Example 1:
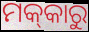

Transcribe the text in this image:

ମକ୍‌କାରୁ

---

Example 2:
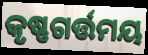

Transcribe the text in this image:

କୃଷ୍ଣଗର୍ତ୍ତମୟ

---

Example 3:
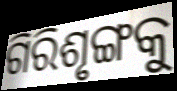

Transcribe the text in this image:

ଗିରିଶୃଙ୍ଗକୁ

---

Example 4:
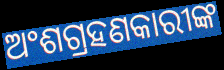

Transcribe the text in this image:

ଅଂଶଗ୍ରହଣକାରୀଙ୍କ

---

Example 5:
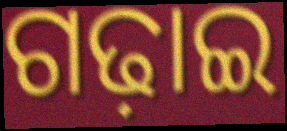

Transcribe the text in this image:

ଗଢ଼ାଇ